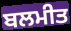
ਬਲਮੀਤ